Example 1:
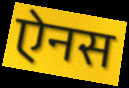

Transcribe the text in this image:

ऐनस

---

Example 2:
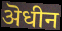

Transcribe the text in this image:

ऄधीन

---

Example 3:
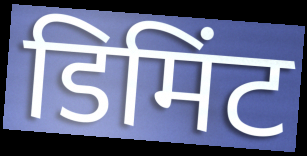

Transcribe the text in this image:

डिमिंट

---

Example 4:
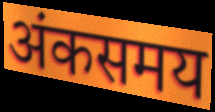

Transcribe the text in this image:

अंकसमय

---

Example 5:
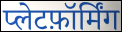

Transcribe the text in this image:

प्लेटफ़ॉर्मिंग